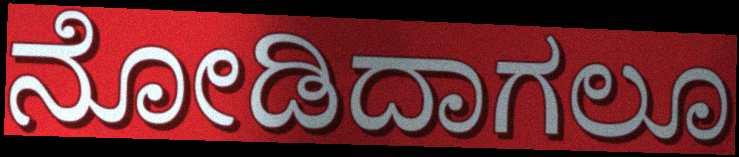
ನೋಡಿದಾಗಲೂ